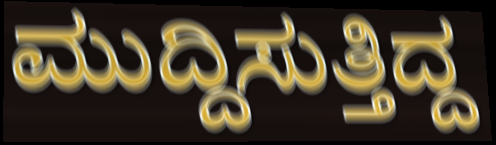
ಮುದ್ದಿಸುತ್ತಿದ್ದ